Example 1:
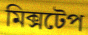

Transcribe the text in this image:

মিক্সটেপ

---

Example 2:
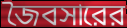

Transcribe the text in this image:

জৈবসারের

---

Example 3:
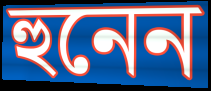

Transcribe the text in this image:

হুনেন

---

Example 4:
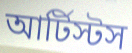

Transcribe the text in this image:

আর্টিস্টস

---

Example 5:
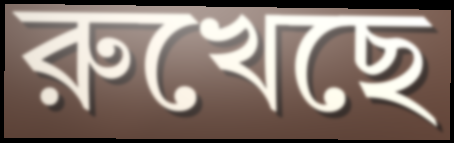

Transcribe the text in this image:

রুখেছে